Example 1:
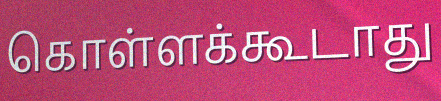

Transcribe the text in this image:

கொள்ளக்கூடாது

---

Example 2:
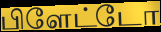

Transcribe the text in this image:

பிளேட்டோ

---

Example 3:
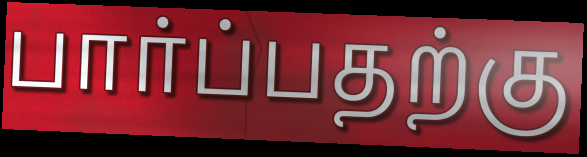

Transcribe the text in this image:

பார்ப்பதற்கு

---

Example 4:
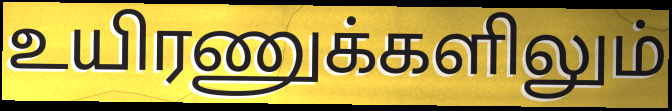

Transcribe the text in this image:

உயிரணுக்களிலும்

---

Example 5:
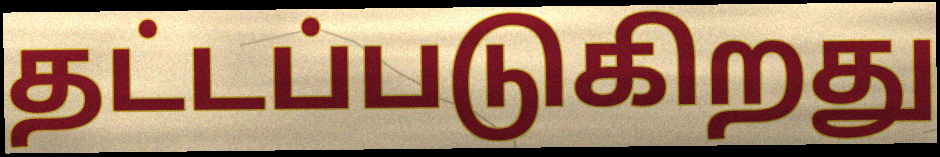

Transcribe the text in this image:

தட்டப்படுகிறது